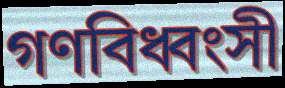
গণবিধ্বংসী